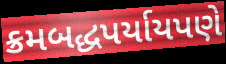
ક્રમબદ્ધપર્યાયપણે